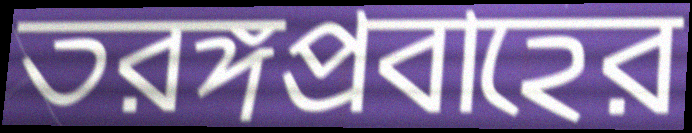
তরঙ্গপ্রবাহের